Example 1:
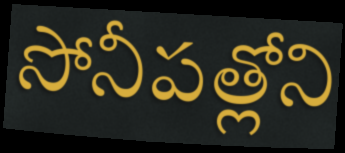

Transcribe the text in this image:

సోనీపత్లోని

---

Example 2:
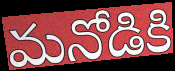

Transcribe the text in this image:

మనోడికి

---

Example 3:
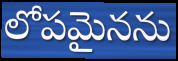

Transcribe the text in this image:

లోపమైనను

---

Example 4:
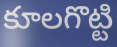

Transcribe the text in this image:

కూలగొట్టి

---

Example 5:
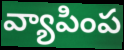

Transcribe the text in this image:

వ్యాపింప